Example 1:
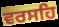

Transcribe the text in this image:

ਵਰਸਹਿ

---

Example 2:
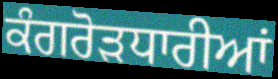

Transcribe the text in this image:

ਕੰਗਰੋੜਧਾਰੀਆਂ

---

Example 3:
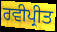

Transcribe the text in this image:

ਰਵੀਪ੍ਰੀਤ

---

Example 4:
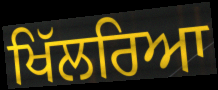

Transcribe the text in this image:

ਖਿੱਲਰਿਆ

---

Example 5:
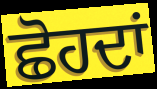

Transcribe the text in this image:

ਛੋਹਦਾਂ